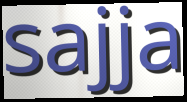
sajja